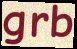
grb